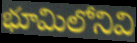
భూమిలోనివి